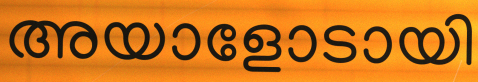
അയാളോടായി